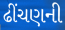
ઢીંચણની